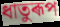
ধাতুৰূপ